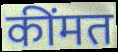
कींमत